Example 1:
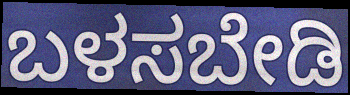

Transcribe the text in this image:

ಬಳಸಬೇಡಿ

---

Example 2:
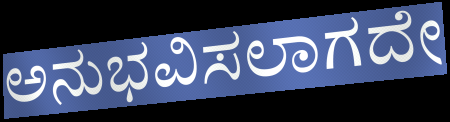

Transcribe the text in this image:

ಅನುಭವಿಸಲಾಗದೇ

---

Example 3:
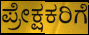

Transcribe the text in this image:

ಪ್ರೇಕ್ಷಕರಿಗೆ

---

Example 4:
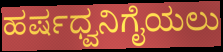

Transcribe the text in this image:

ಹರ್ಷಧ್ವನಿಗೈಯಲು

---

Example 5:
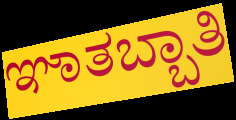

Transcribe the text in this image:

ಞಾತಬ್ಬಾತಿ